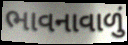
ભાવનાવાળું